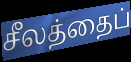
சீலத்தைப்